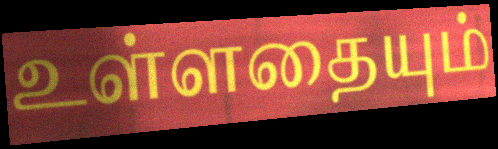
உள்ளதையும்